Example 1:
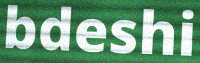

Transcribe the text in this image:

bdeshi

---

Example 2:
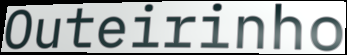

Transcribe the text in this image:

Outeirinho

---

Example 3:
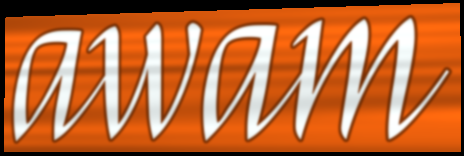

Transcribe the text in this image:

awam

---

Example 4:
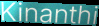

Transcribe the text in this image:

Kinanthi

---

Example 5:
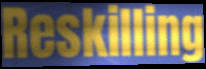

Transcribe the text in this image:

Reskilling